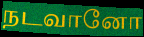
நடவானோ